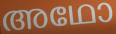
അഥോ